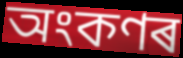
অংকণৰ